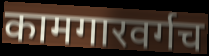
कामगारवर्गच